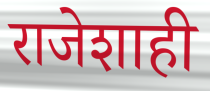
राजेशाही